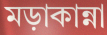
মড়াকান্না